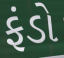
ફંડો